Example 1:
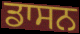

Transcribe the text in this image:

ਡਾਸਨ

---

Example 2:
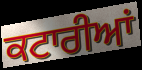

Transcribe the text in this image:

ਕਟਾਰੀਆਂ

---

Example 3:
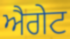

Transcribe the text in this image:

ਐਗੇਟ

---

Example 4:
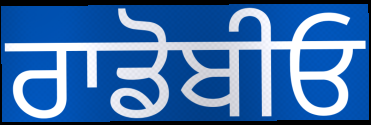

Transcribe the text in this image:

ਰਾਡੋਬੀਓ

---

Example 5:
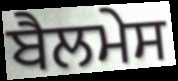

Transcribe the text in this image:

ਬੈਲਮੇਸ